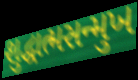
શુદ્ધાત્મસન્મુખ